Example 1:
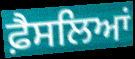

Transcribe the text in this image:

ਫ਼ੈਸਲਿਆਂ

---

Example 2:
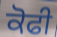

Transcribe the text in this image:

ਕੋਫੀ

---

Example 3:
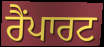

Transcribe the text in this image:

ਰੈਂਪਾਰਟ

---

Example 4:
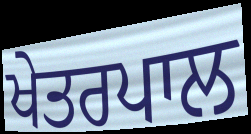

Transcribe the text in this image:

ਖੇਤਰਪਾਲ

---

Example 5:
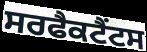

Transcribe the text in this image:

ਸਰਫੈਕਟੈਂਟਸ